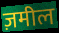
ज़मील